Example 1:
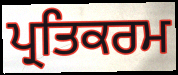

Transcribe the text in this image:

ਪ੍ਰਤਿਕਰਮ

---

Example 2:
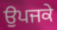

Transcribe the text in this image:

ਉਪਜਕੇ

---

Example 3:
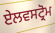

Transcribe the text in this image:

ਏਲਵਸਟ੍ਰੋਮ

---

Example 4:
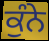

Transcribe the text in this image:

ਕੁੰਨੇ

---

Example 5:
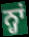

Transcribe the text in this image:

ਨ੍ਹਾਂ